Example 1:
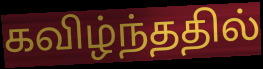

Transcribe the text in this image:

கவிழ்ந்ததில்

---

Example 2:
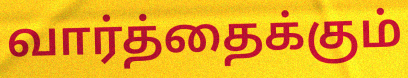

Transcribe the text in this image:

வார்த்தைக்கும்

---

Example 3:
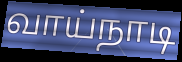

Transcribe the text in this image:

வாய்நாடி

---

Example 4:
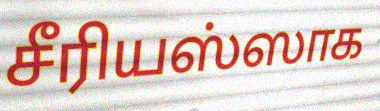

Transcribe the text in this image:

சீரியஸ்ஸாக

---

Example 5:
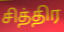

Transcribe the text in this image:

சித்திர